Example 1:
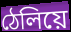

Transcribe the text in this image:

ঠেলিয়ে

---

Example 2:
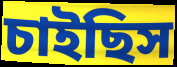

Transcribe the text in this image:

চাইছিস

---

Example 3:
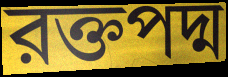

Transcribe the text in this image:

রক্তপদ্ম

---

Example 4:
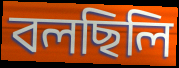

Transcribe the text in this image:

বলছিলি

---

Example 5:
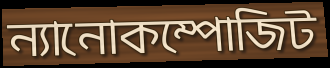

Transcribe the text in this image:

ন্যানোকম্পোজিট